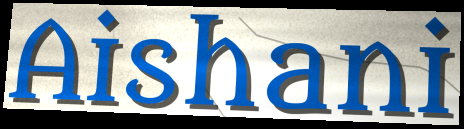
Aishani